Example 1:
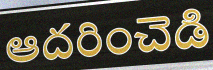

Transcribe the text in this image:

ఆదరించెడి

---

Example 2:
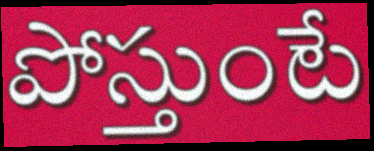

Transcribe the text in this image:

పోస్తుంటే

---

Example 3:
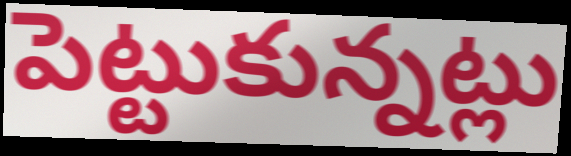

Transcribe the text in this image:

పెట్టుకున్నట్లు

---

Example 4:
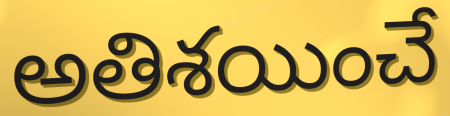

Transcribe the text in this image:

అతిశయించే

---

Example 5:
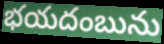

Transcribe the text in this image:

భయదంబును